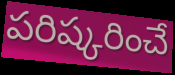
పరిష్కరించే